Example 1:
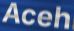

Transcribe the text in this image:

Aceh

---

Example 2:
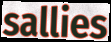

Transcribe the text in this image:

sallies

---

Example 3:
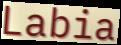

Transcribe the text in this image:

Labia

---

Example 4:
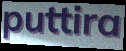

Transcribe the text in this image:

puttira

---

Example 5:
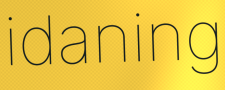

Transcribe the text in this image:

idaning